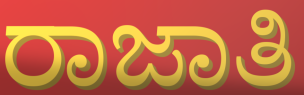
ರಾಜಾತಿ